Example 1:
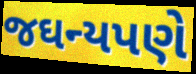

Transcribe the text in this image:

જઘન્યપણે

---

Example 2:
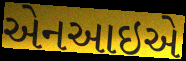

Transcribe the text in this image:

એનઆઇએ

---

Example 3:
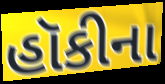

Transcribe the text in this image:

હૉકીના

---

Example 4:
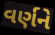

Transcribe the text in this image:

વર્ણને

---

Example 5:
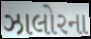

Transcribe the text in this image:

ઝાલોરના